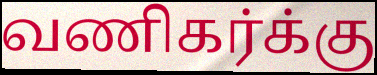
வணிகர்க்கு